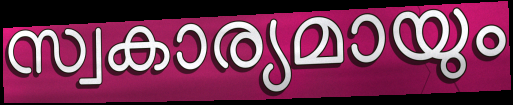
സ്വകാര്യമായും